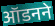
ऑडनने